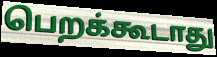
பெறக்கூடாது